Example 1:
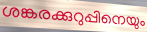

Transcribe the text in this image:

ശങ്കരക്കുറുപ്പിനെയും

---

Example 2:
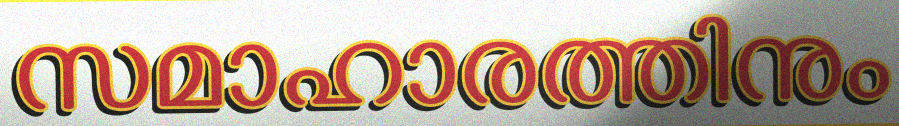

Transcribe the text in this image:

സമാഹാരത്തിനും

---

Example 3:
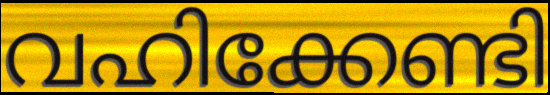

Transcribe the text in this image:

വഹിക്കേണ്ടി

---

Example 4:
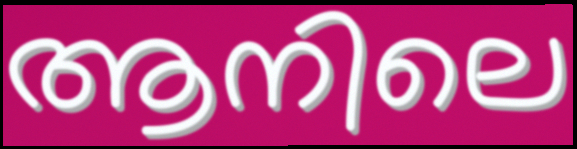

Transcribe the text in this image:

ആനിലെ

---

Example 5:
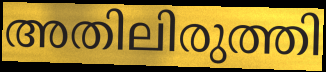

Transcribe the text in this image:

അതിലിരുത്തി